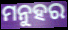
ମନୁହର